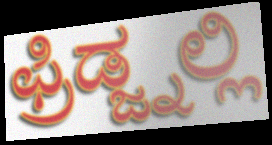
ಫ್ರಿಡ್ಜ್ನಲ್ಲಿ